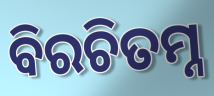
ବିରଚିତମ୍ନ